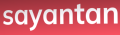
sayantan